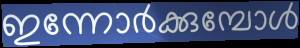
ഇന്നോർക്കുമ്പോൾ